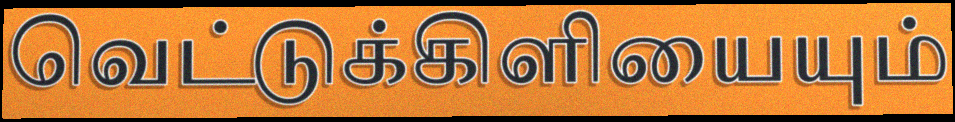
வெட்டுக்கிளியையும்